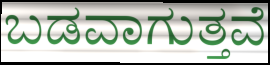
ಬಡವಾಗುತ್ತವೆ